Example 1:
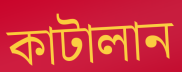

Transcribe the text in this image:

কাটালান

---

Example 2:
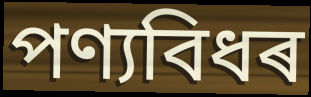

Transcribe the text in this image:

পণ্যবিধৰ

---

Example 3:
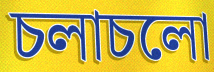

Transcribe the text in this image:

চলাচলো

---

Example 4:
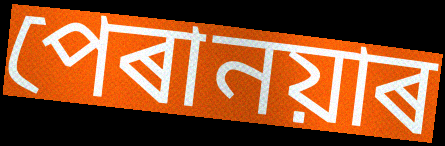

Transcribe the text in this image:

পেৰানয়াৰ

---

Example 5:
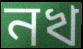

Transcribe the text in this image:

নখ